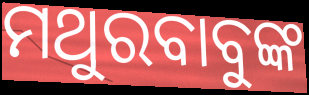
ମଥୁରବାବୁଙ୍କ